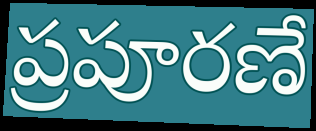
ప్రపూరణే